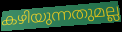
കഴിയുന്നതുമല്ല